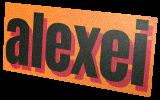
alexei